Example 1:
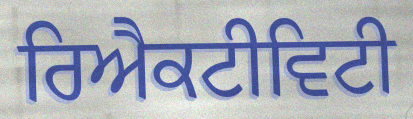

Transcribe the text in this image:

ਰਿਐਕਟੀਵਿਟੀ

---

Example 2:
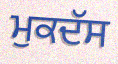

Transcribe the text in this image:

ਮੁਕਦੱਸ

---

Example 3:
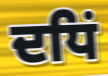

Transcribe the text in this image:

ਦਧਿਂ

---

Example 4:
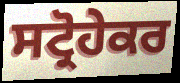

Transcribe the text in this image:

ਸਟ੍ਰੋਹੇਕਰ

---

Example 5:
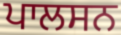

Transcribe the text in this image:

ਪਾਲਸਨ